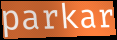
parkar